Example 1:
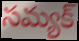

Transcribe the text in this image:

సమ్యక్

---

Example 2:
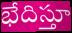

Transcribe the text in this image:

భేదిస్తూ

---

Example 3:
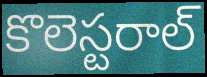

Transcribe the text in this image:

కొలెస్టరాల్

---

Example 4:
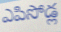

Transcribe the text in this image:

ఎపిసోడ్ల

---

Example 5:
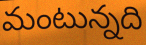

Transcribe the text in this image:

మంటున్నది